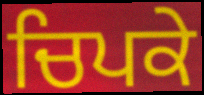
ਚਿਪਕੇ